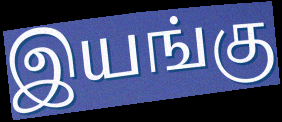
இயங்கு